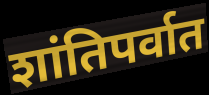
शांतिपर्वात